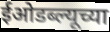
ईओडब्ल्यूच्या